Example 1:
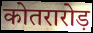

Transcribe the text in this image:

कोतरारोड़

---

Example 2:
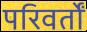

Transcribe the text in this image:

परिवर्तों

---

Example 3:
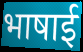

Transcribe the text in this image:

भाषाई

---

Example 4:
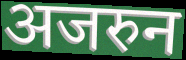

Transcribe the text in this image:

अजरुन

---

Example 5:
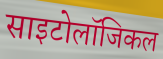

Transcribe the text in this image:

साइटोलॉजिकल